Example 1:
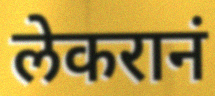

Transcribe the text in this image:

लेकरानं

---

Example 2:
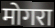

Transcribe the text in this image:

मोगरा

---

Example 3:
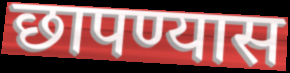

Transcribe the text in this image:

छापण्यास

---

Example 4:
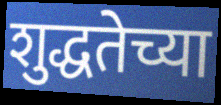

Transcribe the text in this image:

शुद्धतेच्या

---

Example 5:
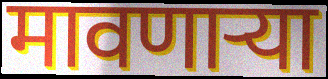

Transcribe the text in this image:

मावणाऱ्या